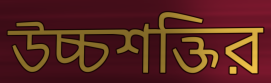
উচ্চশক্তির